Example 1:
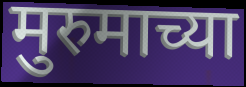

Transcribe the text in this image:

मुरुमाच्या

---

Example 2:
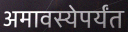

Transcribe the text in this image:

अमावस्येपर्यंत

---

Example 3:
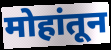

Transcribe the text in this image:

मोहांतून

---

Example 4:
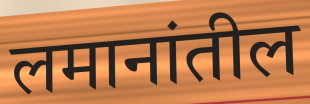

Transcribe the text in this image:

लमानांतील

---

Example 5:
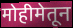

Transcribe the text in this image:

मोहीमेतून